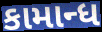
કામાન્ધ